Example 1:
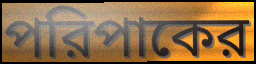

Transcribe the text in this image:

পরিপাকের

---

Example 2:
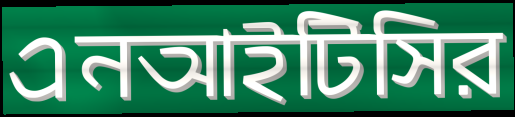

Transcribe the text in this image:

এনআইটিসির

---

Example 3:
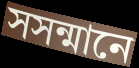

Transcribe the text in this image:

সসন্মানে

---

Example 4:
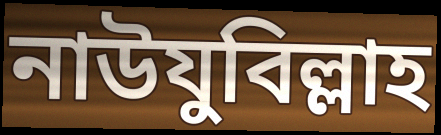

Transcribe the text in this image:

নাউযুবিল্লাহ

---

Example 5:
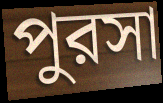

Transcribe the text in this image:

পুরসা